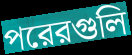
পরেরগুলি